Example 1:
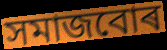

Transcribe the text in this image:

সমাজবোৰ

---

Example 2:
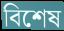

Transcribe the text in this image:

বিশেষ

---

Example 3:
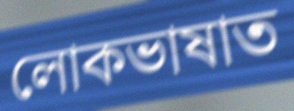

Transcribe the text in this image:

লোকভাষাত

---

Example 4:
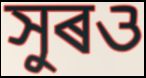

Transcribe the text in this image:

সুৰও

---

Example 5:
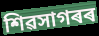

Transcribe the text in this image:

শিৱসাগৰৰ